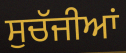
ਸੁਚੱਜੀਆਂ